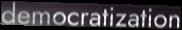
democratization